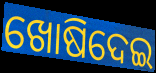
ଖୋଷିଦେଇ